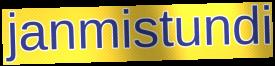
janmistundi